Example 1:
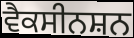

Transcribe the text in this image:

ਵੈਕਸੀਨਸ਼ਨ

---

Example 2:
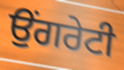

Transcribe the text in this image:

ਉਂਗਰੇਟੀ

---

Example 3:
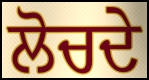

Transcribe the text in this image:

ਲੋਚਦੇ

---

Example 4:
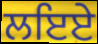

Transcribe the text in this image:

ਲਇਏ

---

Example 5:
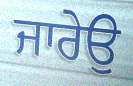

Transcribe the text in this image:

ਜਾਰੇਉ